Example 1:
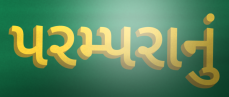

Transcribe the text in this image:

પરમ્પરાનું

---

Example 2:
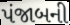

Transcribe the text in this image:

પંજાબની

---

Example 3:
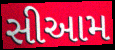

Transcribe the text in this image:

સીઆમ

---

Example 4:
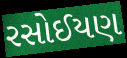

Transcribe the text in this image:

રસોઈયણ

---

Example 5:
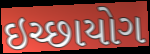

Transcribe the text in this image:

ઇચ્છાયોગ